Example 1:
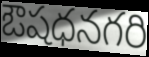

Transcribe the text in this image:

ఔషధనగరి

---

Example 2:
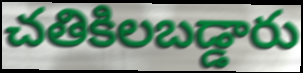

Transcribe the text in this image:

చతికిలబడ్డారు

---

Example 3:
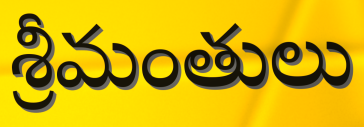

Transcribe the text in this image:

శ్రీమంతులు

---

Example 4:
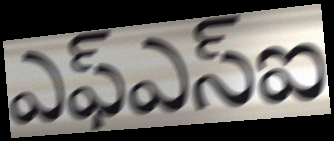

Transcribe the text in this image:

ఎఫ్ఎస్ఐ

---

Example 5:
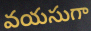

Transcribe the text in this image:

వయసుగా